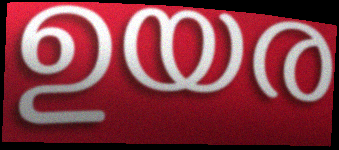
ഉയര